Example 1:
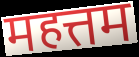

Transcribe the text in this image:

महत्तम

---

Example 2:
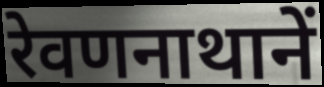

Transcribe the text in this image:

रेवणनाथानें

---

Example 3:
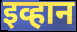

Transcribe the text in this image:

इव्हान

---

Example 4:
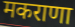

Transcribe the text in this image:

मकराणा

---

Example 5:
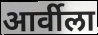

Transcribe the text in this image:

आर्वीला